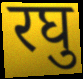
रघु